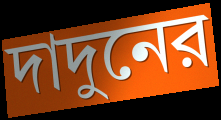
দাদুনের